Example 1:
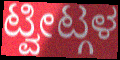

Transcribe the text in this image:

ಟ್ವೀಟ್ಗಳ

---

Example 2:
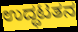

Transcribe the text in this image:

ಉದ್ಧಟತನ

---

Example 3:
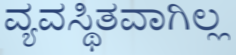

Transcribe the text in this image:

ವ್ಯವಸ್ಥಿತವಾಗಿಲ್ಲ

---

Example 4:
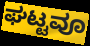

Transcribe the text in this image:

ಘಟ್ಟವೂ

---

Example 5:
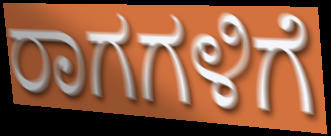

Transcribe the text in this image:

ರಾಗಗಳಿಗೆ